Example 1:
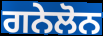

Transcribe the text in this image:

ਗਨੇਲੋਨ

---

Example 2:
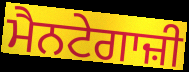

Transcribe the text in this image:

ਮੈਨਟੇਗਾਜ਼ੀ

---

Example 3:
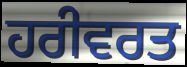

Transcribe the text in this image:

ਹਰੀਵਰਤ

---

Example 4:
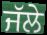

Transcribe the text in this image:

ਜੱਲੇ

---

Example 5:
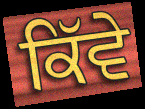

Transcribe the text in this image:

ਕਿੱਵੇ